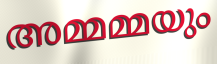
അമ്മമ്മയും